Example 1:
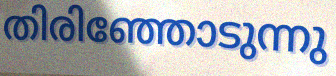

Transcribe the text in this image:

തിരിഞ്ഞോടുന്നു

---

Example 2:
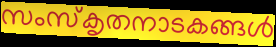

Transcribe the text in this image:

സംസ്കൃതനാടകങ്ങൾ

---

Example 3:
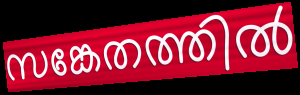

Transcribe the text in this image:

സങ്കേതത്തിൽ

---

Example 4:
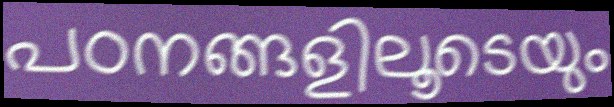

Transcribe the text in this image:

പഠനങ്ങളിലൂടെയും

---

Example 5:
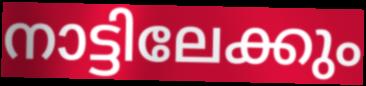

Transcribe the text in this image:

നാട്ടിലേക്കും